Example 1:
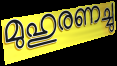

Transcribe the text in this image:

മുഹുരണച്ചു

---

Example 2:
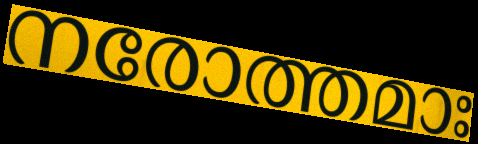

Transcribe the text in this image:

നരോത്തമാഃ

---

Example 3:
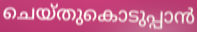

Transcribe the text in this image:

ചെയ്തുകൊടുപ്പാൻ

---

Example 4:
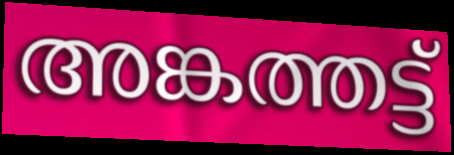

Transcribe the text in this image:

അങ്കത്തട്ട്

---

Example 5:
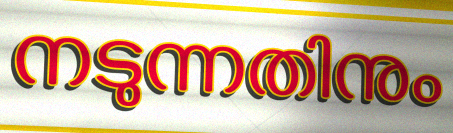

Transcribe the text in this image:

നടുന്നതിനും